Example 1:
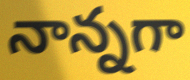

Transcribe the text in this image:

నాన్నగా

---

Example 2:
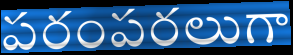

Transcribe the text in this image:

పరంపరలుగా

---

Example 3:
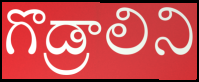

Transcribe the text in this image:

గొడ్రాలిని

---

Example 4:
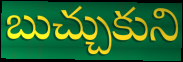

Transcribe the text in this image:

బుచ్చుకుని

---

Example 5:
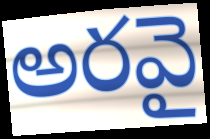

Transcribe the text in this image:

అరవై